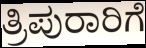
ತ್ರಿಪುರಾರಿಗೆ